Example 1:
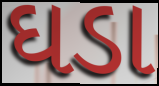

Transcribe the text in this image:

ઘડા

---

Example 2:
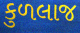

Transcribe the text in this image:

કુળલાજ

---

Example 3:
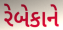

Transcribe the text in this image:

રેબેકાને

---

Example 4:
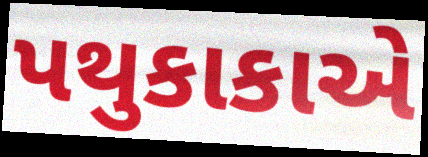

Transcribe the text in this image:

પથુકાકાએ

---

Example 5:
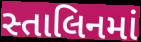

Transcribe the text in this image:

સ્તાલિનમાં